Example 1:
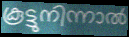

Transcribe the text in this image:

കൂട്ടുനിന്നാൽ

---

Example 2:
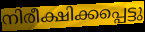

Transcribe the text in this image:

നിരീക്ഷിക്കപ്പെട്ടു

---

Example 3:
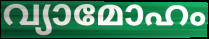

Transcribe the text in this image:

വ്യാമോഹം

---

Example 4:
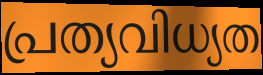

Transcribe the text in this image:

പ്രത്യവിധ്യത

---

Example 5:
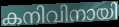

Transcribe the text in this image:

കനിവിനായി